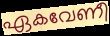
ഏകവേണീ